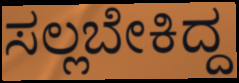
ಸಲ್ಲಬೇಕಿದ್ದ